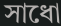
সাধো